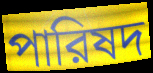
পারিষদ